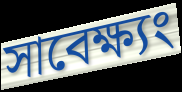
সাবেক্ষ্যং